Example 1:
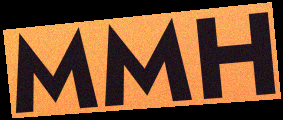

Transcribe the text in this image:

MMH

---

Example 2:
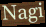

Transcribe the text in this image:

Nagi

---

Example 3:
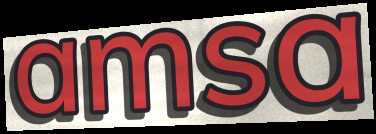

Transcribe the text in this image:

amsa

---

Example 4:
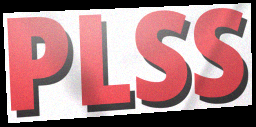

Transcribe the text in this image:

PLSS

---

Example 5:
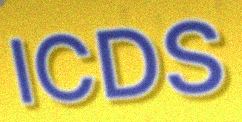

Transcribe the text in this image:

ICDS